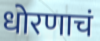
धोरणाचं